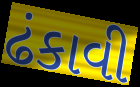
ઢંકાવી